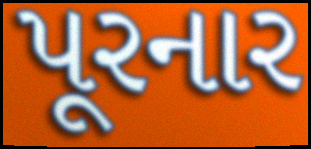
પૂરનાર